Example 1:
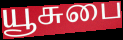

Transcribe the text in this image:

யூசுபை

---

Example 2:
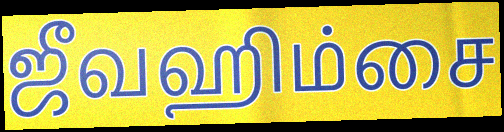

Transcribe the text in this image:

ஜீவஹிம்சை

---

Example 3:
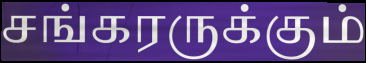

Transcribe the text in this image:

சங்கரருக்கும்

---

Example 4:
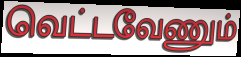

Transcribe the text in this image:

வெட்டவேணும்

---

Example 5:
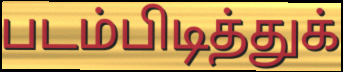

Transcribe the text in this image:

படம்பிடித்துக்